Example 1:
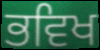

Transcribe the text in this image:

ਭਵਿਖ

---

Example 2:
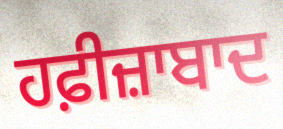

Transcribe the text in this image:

ਹਫ਼ੀਜ਼ਾਬਾਦ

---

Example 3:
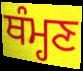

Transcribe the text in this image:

ਥੰਮ੍ਹਣ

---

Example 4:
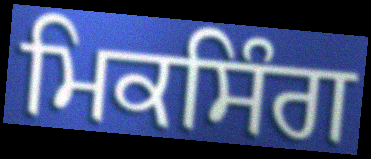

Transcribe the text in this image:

ਮਿਕਸਿੰਗ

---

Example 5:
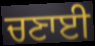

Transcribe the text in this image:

ਚਣਾਈ